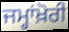
ਜਮ੍ਹਾਂਖ਼ੋਰੀ